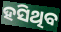
ହସିଥିବ